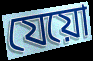
যেয়ো